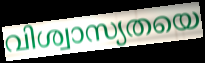
വിശ്വാസ്യതയെ